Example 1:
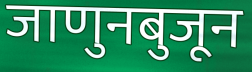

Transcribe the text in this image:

जाणुनबुजून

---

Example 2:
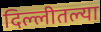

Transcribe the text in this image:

दिल्लीतल्या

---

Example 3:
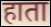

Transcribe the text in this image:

हाता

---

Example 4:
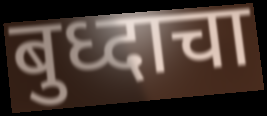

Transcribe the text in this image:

बुध्दाचा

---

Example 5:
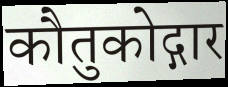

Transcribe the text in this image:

कौतुकोद्गार